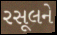
રસૂલને